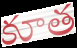
కూత